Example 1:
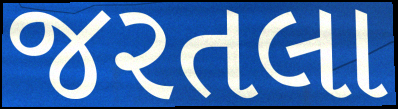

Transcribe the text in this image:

જરતલા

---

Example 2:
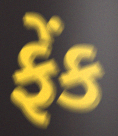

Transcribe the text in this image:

ફેંક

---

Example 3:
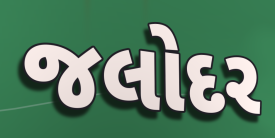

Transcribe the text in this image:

જલોદર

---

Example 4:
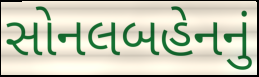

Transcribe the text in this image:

સોનલબહેનનું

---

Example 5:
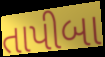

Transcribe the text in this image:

તાપીબા